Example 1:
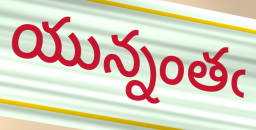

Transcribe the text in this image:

యున్నంతఁ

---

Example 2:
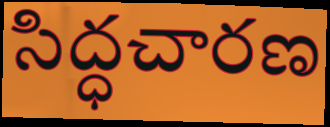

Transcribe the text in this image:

సిద్ధచారణ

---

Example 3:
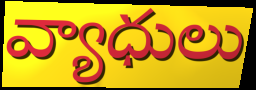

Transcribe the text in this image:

వ్యాధులు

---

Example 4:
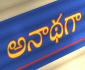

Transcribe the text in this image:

అనాథగా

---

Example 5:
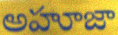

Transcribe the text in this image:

అహూజా